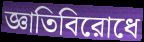
জ্ঞাতিবিরোধে